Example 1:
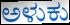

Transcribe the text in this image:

ಅಳುಕು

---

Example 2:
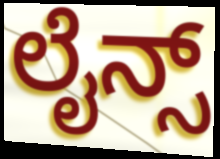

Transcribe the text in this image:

ಲೈನ್ಸ್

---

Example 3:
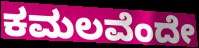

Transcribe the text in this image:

ಕಮಲವೆಂದೇ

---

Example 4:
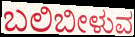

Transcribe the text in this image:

ಬಲಿಬೀಳುವ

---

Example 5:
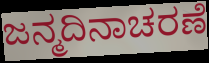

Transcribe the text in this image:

ಜನ್ಮದಿನಾಚರಣೆ